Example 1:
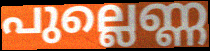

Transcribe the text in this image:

പുല്ലെണ്ണ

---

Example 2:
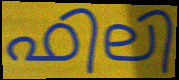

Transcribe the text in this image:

ഫിലി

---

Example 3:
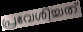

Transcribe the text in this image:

പ്രവേശിച്ചത്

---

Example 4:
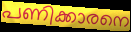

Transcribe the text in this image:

പണിക്കാരനെ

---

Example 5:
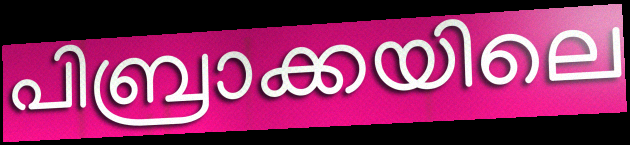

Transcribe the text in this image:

പിബ്രാക്കയിലെ